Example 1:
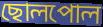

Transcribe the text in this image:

ছোলপোল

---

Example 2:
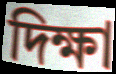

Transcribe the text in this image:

দিক্ষা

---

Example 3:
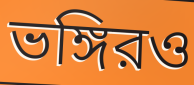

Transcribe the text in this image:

ভঙ্গিরও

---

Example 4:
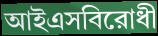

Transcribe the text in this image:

আইএসবিরোধী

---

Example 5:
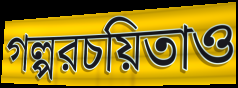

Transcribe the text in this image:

গল্পরচয়িতাও